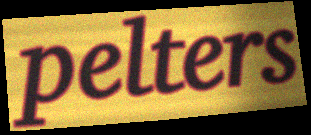
pelters